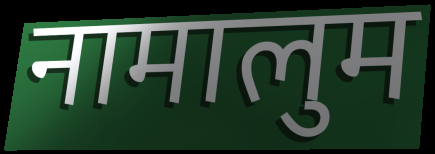
नामालुम